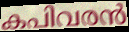
കപിവരൻ